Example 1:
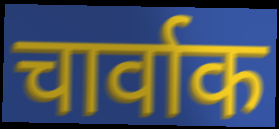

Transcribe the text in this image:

चार्वाक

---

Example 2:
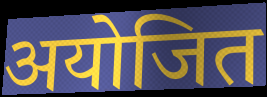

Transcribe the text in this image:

अयोजित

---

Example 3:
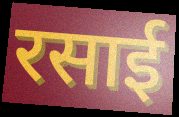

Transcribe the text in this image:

रसाई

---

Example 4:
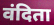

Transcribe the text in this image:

वंदिता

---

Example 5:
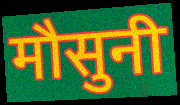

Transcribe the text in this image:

मौसुनी